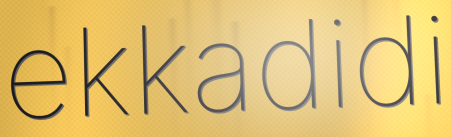
ekkadidi